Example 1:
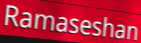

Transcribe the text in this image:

Ramaseshan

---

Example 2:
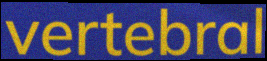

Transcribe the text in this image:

vertebral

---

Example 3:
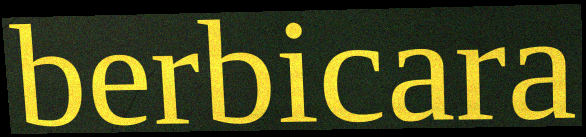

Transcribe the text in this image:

berbicara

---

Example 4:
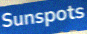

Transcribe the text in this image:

Sunspots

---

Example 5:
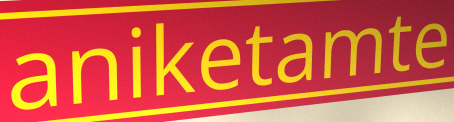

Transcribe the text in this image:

aniketamte